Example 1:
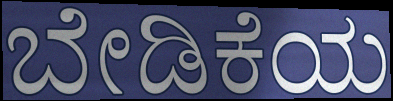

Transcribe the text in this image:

ಬೇಡಿಕೆಯ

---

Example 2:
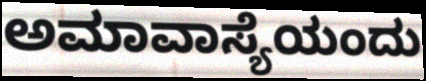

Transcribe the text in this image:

ಅಮಾವಾಸ್ಯೆಯಂದು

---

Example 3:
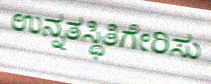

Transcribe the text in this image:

ಉನ್ನತಸ್ಥಿತಿಗೇರಿಸು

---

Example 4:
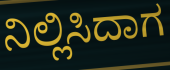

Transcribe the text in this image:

ನಿಲ್ಲಿಸಿದಾಗ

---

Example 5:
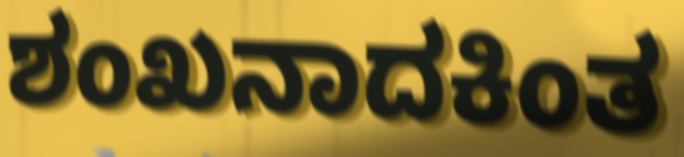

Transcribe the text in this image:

ಶಂಖನಾದಕಿಂತ